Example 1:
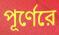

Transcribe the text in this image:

পূর্ণেরে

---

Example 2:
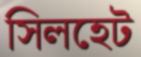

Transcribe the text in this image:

সিলহেট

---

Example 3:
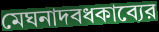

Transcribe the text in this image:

মেঘনাদবধকাব্যের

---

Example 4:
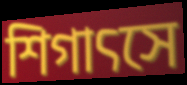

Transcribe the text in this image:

শিগাৎসে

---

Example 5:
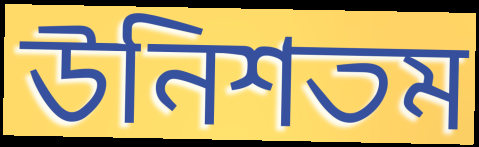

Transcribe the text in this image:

উনিশতম